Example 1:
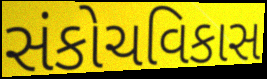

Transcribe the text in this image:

સંકોચવિકાસ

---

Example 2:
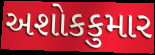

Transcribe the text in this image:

અશોકકુમાર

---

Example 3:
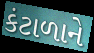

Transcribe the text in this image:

કંટાળાને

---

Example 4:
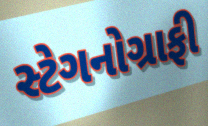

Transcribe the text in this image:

સ્ટેગનોગ્રાફી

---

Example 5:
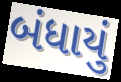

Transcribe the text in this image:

બંધાયું